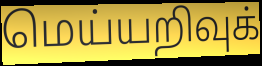
மெய்யறிவுக்